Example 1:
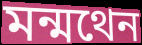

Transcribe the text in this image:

মন্মথেন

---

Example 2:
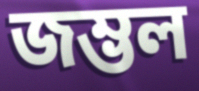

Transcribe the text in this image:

জম্ভল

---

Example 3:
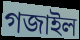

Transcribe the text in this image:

গজাইল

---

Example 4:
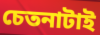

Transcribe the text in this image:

চেতনাটাই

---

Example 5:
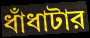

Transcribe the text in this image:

ধাঁধাটার